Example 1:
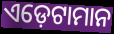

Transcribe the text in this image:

ଏଡ଼େଟାମାନ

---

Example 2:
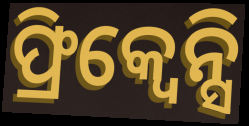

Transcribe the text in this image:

ଫ୍ରିକ୍ୱେନ୍ସି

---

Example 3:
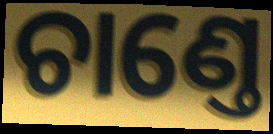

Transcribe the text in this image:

ଚାଣ୍ତେ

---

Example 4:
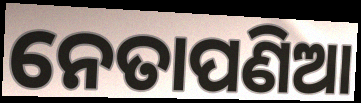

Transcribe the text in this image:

ନେତାପଣିଆ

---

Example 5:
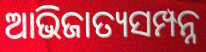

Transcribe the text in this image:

ଆଭିଜାତ୍ୟସମ୍ପନ୍ନ